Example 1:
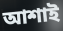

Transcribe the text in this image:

আশাই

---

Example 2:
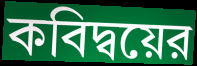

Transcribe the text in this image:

কবিদ্বয়ের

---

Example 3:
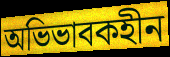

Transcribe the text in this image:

অভিভাবকহীন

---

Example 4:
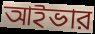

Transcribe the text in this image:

আইভার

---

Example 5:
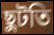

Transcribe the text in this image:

ছুটতি